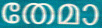
തേമാ